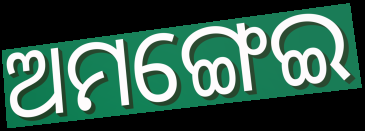
ଅମଙ୍ଗେଇ